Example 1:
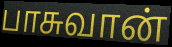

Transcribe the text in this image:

பாசுவான்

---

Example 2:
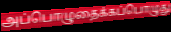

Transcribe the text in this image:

அப்பொழுதைக்கப்பொழுது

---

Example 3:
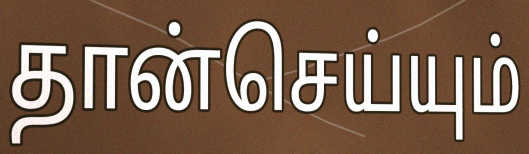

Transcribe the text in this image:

தான்செய்யும்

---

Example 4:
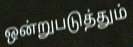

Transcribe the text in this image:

ஒன்றுபடுத்தும்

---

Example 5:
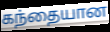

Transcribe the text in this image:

கந்தையான